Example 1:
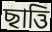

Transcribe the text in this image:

ছাত্তি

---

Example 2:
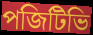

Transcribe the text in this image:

পজিটিভি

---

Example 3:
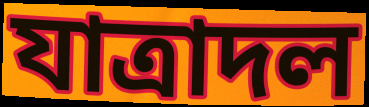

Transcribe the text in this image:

যাত্রাদল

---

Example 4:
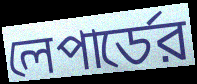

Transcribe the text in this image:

লেপার্ডের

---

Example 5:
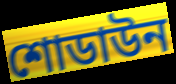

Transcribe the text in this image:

শোডাউন